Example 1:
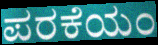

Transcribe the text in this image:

ಪರಕೆಯಂ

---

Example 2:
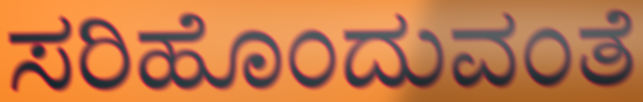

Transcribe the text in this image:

ಸರಿಹೊಂದುವಂತೆ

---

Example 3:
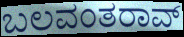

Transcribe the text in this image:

ಬಲವಂತರಾವ್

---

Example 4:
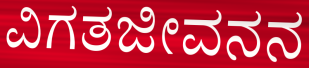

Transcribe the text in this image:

ವಿಗತಜೀವನನ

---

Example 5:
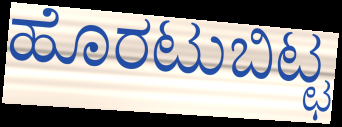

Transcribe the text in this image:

ಹೊರಟುಬಿಟ್ಟ